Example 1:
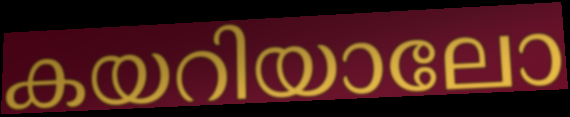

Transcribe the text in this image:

കയറിയാലോ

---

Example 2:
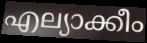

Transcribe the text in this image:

എല്യാക്കീം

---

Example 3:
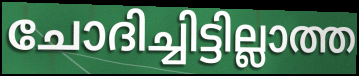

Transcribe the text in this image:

ചോദിച്ചിട്ടില്ലാത്ത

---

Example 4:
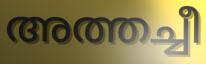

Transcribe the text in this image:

അത്തച്ചീ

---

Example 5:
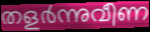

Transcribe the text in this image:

തളർന്നുവീണ